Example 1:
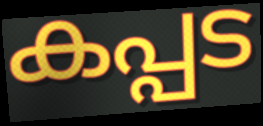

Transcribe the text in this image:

കപ്പട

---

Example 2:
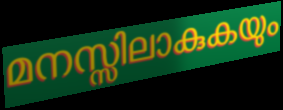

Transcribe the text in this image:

മനസ്സിലാകുകയും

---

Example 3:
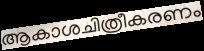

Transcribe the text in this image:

ആകാശചിത്രീകരണം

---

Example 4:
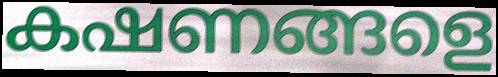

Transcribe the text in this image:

കഷണങ്ങളെ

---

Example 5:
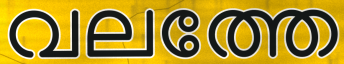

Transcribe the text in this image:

വലത്തേ